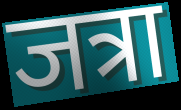
जत्रा